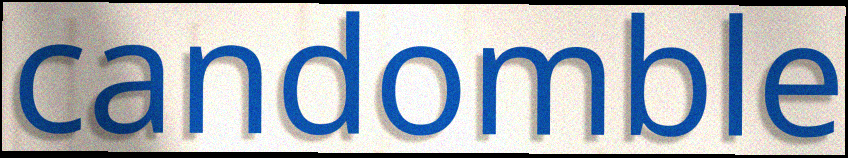
candomble